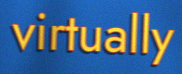
virtually